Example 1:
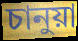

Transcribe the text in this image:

চানুয়া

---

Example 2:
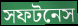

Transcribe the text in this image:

সফটনেস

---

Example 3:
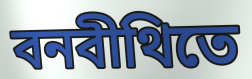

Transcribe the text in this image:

বনবীথিতে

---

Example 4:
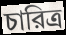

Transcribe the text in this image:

চারিত্র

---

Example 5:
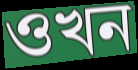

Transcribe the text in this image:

ওখন